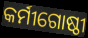
କର୍ମୀଗୋଷ୍ଠୀ